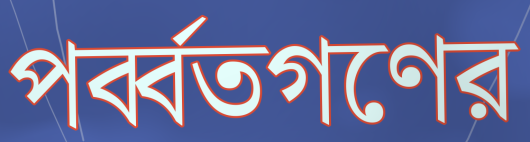
পর্ব্বতগণের